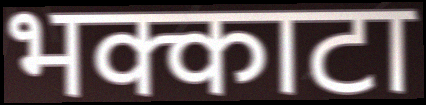
भक्काटा